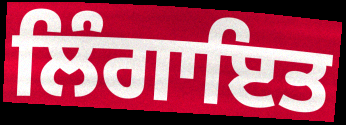
ਲਿੰਗਾਇਤ